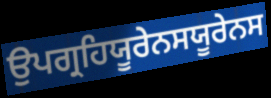
ਉਪਗ੍ਰਹਿਯੂਰੇਨਸਯੂਰੇਨਸ